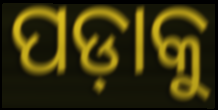
ପଡ଼ାକୁ